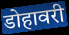
डोहावरी